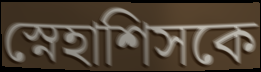
স্নেহাশিসকে